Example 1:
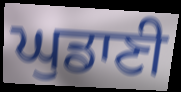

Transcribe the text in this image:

ਘੁਡਾਣੀ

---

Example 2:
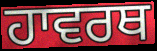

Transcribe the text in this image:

ਹਾਵਰਥ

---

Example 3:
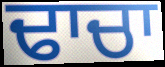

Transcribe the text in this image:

ਢਾਚਾ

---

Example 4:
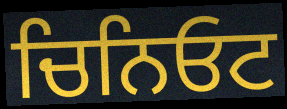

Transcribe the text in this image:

ਚਿਨਿਓਟ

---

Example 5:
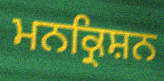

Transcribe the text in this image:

ਮਨਕ੍ਰਿਸ਼ਨ